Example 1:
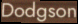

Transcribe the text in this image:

Dodgson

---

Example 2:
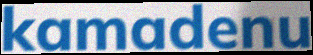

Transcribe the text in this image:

kamadenu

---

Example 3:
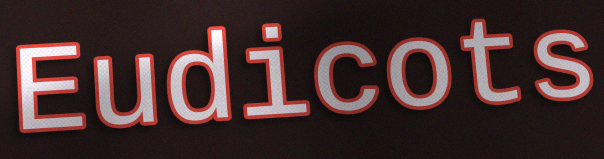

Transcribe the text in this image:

Eudicots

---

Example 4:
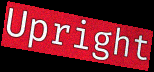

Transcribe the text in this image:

Upright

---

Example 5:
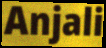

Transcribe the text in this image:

Anjali